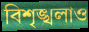
বিশৃঙ্খলাও